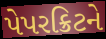
પેપરક્રિટને